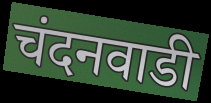
चंदनवाडी